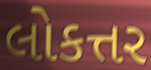
લોકત્તર